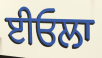
ਈਓਲਾ